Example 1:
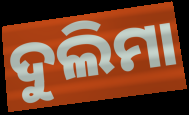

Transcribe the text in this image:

ଦୁଲିମା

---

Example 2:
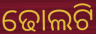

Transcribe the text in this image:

ଢୋଲଟି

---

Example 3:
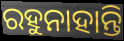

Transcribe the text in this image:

ରହୁନାହାନ୍ତି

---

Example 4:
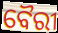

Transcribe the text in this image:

ବୈରୀ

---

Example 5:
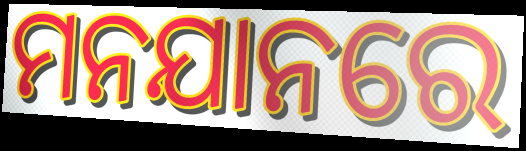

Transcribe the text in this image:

ମନଯାନରେ